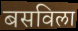
बसविला